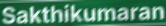
Sakthikumaran